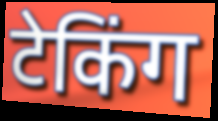
टेकिंग